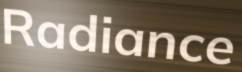
Radiance